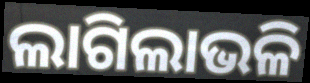
ଲାଗିଲାଭଳି